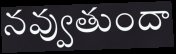
నవ్వుతుందా